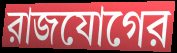
রাজযোগের